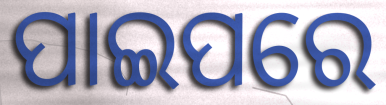
ପାଇପରେ